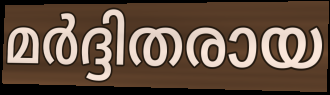
മർദ്ദിതരായ